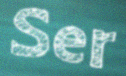
Ser